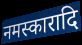
नमस्कारादि